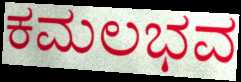
ಕಮಲಭವ